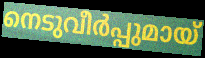
നെടുവീർപ്പുമായ്